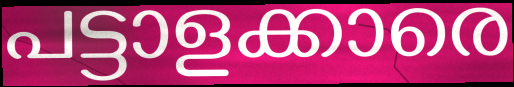
പട്ടാളക്കാരെ